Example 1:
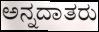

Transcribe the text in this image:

ಅನ್ನದಾತರು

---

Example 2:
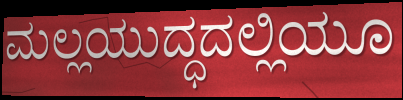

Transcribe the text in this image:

ಮಲ್ಲಯುದ್ಧದಲ್ಲಿಯೂ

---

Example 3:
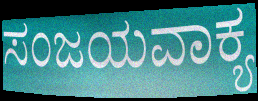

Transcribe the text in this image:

ಸಂಜಯವಾಕ್ಯ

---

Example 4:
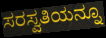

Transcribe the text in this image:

ಸರಸ್ವತಿಯನ್ನೂ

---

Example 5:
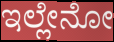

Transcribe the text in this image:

ಇಲ್ಲೇನೋ